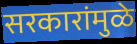
सरकारांमुळे